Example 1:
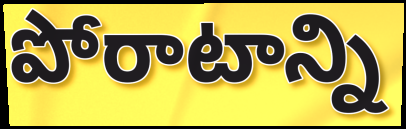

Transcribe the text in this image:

పోరాటాన్ని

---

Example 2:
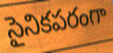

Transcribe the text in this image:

సైనికపరంగా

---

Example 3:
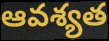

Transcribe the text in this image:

ఆవశ్యత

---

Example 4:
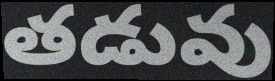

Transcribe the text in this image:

తడువు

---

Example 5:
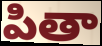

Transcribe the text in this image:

పితా